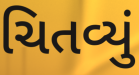
ચિતવ્યું